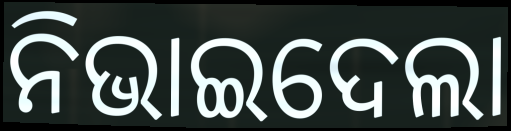
ନିଭାଇଦେଲା